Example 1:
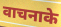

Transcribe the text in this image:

वाचनाके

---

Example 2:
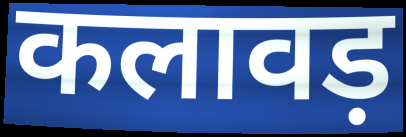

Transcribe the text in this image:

कलावड़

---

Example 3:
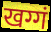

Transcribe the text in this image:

खग्गं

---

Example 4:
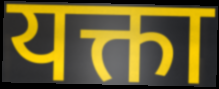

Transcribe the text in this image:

यक्ता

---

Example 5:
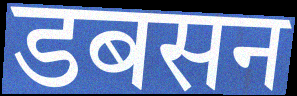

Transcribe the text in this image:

डबसन